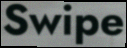
Swipe